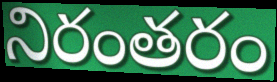
నిరంతరం